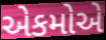
એકમોએ